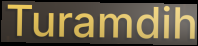
Turamdih